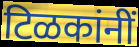
टिळकांनीं